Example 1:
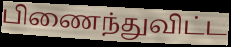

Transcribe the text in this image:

பிணைந்துவிட்ட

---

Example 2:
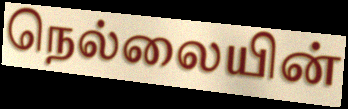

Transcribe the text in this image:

நெல்லையின்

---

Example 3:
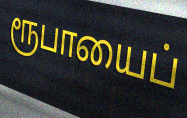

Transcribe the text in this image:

ரூபாயைப்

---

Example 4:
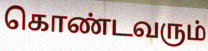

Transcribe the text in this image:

கொண்டவரும்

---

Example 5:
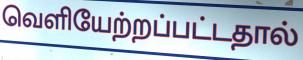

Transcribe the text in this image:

வெளியேற்றப்பட்டதால்